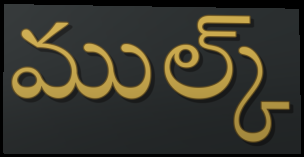
ముల్క్